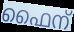
ഫൈന്